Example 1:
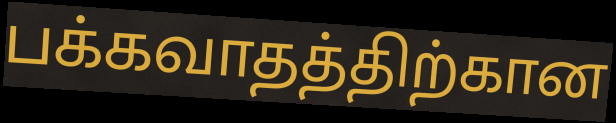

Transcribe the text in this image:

பக்கவாதத்திற்கான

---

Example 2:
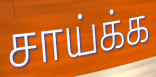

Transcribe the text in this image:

சாய்க்க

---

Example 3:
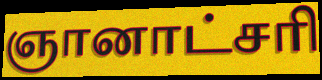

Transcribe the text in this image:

ஞானாட்சரி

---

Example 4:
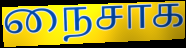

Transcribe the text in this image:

நைசாக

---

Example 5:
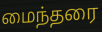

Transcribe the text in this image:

மைந்தரை